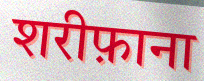
शरीफ़ाना